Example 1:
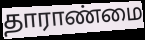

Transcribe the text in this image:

தாராண்மை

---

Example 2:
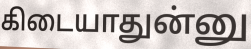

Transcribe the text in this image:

கிடையாதுன்னு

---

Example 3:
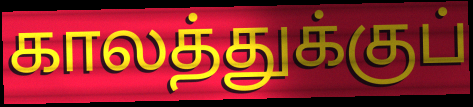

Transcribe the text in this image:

காலத்துக்குப்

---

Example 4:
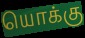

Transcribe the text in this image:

யொக்கு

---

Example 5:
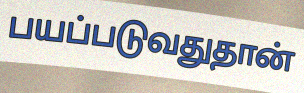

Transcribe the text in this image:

பயப்படுவதுதான்